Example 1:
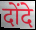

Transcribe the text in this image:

दोंदे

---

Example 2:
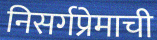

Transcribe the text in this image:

निसर्गप्रेमाची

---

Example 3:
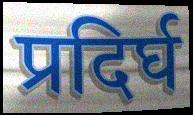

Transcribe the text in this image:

प्रदिर्घ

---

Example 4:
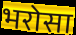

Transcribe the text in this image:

भरोसा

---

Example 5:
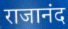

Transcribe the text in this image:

राजानंद